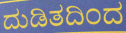
ದುಡಿತದಿಂದ